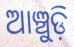
ଆଞ୍ଚୁଡ଼ି